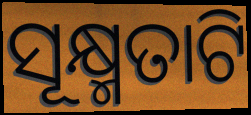
ସୂକ୍ଷ୍ମତାଟି